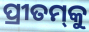
ପ୍ରୀତମ୍‌କୁ